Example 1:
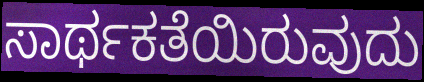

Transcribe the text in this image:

ಸಾರ್ಥಕತೆಯಿರುವುದು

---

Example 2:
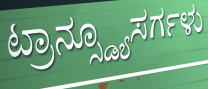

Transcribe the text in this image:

ಟ್ರಾನ್ಸ್ಡ್ಯೂಸರ್ಗಳು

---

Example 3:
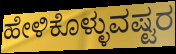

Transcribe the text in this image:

ಹೇಳಿಕೊಳ್ಳುವಷ್ಟರ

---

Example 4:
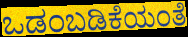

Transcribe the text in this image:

ಒಡಂಬಡಿಕೆಯಂತೆ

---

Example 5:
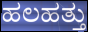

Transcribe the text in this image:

ಹಲಹತ್ತು